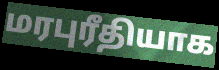
மரபுரீதியாக